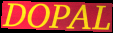
DOPAL